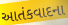
આતંકવાદના